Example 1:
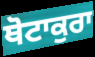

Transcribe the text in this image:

ਥੋਟਾਕੁਰਾ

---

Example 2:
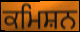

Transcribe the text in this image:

ਕਮਿਸ਼ਨ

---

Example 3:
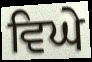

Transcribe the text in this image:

ਵਿਘੇ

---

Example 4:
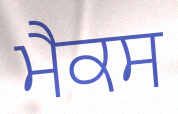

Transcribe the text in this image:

ਮੈਕਸ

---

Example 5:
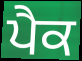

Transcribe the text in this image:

ਪੈਕ